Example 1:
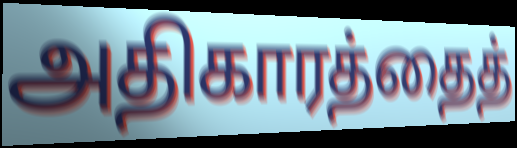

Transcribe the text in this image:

அதிகாரத்தைத்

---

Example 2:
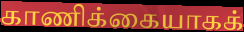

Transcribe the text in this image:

காணிக்கையாகக்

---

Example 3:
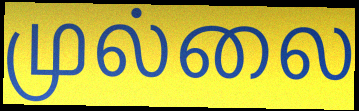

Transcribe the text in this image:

முல்லை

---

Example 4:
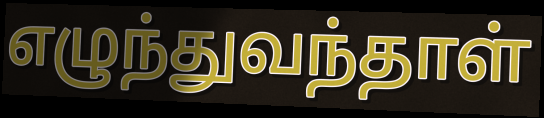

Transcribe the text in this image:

எழுந்துவந்தாள்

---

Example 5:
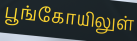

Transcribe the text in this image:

பூங்கோயிலுள்